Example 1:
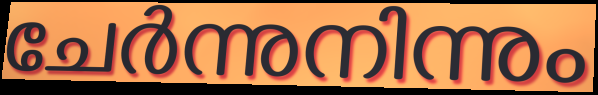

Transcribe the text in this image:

ചേർന്നുനിന്നും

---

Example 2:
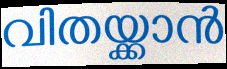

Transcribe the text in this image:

വിതയ്ക്കാൻ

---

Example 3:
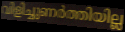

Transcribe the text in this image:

വിളിച്ചുണർത്തിയില്ല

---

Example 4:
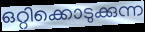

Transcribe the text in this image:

ഒറ്റിക്കൊടുക്കുന്ന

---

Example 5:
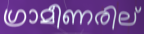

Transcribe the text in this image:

ഗ്രാമീണരില്